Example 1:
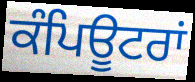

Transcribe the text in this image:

ਕੰਪਿਊਟਰਾਂ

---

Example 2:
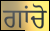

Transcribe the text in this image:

ਗਾਂਚੋ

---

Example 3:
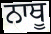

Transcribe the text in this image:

ਨਾਥੂ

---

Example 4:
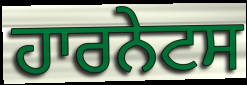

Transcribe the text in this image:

ਹਾਰਨੇਟਸ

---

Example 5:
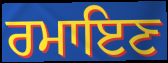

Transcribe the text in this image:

ਰਮਾਇਣ